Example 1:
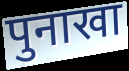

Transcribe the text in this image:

पुनाखा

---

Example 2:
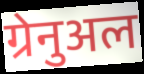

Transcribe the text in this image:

ग्रेनुअल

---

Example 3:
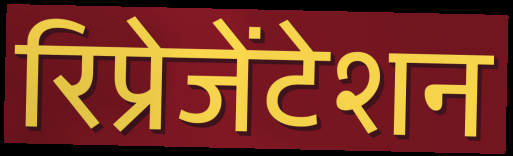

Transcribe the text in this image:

रिप्रेजेंटेशन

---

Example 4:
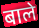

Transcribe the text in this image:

बाले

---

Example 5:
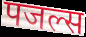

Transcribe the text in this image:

पजल्स